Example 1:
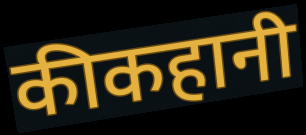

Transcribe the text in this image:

कीकहानी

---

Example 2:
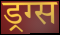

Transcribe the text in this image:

ड्रग्स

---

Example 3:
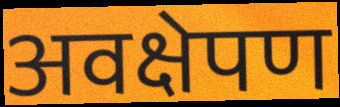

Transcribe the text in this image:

अवक्षेपण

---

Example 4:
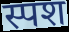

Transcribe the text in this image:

स्पश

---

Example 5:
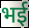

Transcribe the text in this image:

भई